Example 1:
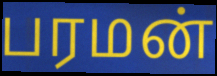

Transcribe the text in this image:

பரமன்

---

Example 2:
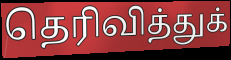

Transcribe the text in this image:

தெரிவித்துக்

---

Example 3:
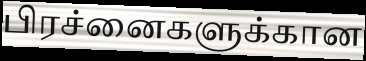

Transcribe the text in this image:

பிரச்னைகளுக்கான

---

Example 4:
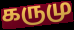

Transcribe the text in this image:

கருமு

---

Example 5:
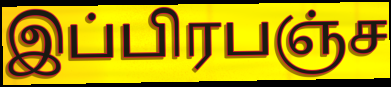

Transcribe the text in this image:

இப்பிரபஞ்ச